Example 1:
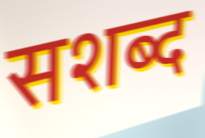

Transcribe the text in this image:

सशब्द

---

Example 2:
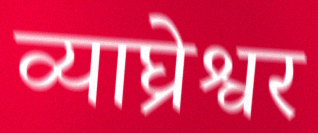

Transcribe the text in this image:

व्याघ्रेश्वर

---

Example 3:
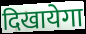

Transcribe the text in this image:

दिखायेगा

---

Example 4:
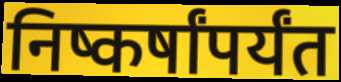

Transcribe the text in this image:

निष्कर्षांपर्यंत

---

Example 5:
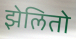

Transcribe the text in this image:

झेलितो